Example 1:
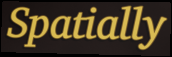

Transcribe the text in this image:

Spatially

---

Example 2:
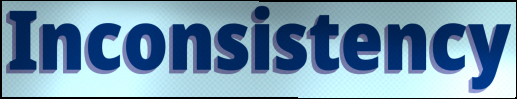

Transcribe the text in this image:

Inconsistency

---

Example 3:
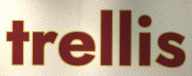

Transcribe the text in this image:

trellis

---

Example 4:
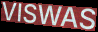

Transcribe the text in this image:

VISWAS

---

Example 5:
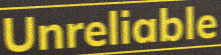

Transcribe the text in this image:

Unreliable